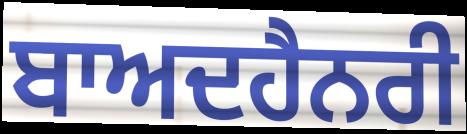
ਬਾਅਦਹੈਨਰੀ